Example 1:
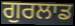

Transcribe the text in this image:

ਗੁਰਲਾਡ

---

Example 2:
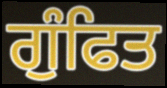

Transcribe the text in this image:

ਗੁੰਫਿਤ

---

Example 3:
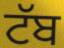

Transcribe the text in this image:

ਟੱਬ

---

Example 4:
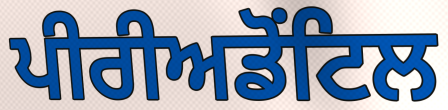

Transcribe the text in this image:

ਪੀਰੀਅਡੋਂਟਿਲ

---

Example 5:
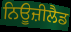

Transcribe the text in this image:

ਨਿਊਜ਼ੀਲੈਡ